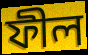
ফীল